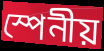
স্পেনীয়